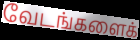
வேடங்களைக்